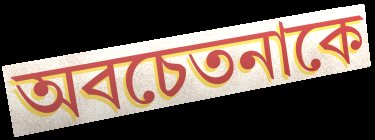
অবচেতনাকে